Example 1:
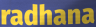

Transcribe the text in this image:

radhana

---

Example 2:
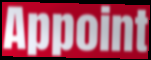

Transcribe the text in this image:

Appoint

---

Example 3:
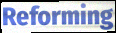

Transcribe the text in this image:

Reforming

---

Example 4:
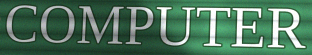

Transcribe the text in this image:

COMPUTER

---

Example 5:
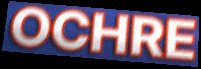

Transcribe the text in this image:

OCHRE